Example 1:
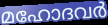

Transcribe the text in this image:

മഹോദവർ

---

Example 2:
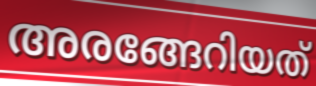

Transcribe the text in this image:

അരങ്ങേറിയത്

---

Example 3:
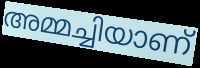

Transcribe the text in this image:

അമ്മച്ചിയാണ്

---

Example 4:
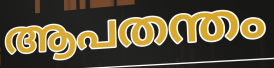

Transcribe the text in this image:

ആപതന്തം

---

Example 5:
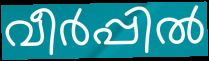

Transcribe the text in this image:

വീർപ്പിൽ